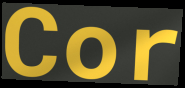
Cor